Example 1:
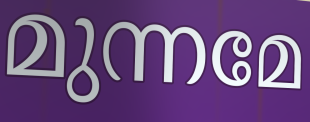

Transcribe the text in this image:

മുന്നമേ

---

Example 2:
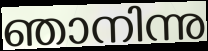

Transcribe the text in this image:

ഞാനിന്നു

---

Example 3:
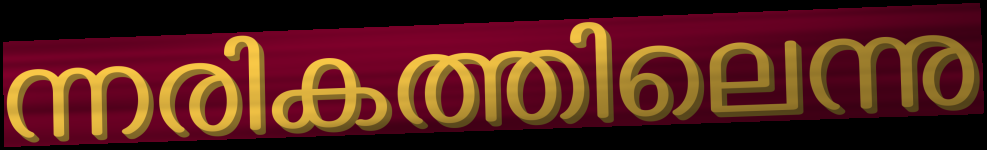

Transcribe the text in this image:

ന്നരികത്തിലെന്നു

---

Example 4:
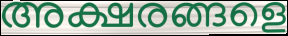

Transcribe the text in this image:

അക്ഷരങ്ങളെ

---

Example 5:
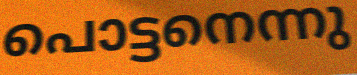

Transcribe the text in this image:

പൊട്ടനെന്നു